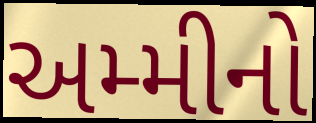
અમ્મીનો